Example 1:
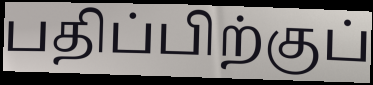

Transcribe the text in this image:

பதிப்பிற்குப்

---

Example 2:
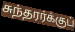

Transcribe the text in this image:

சுந்தரர்க்குப்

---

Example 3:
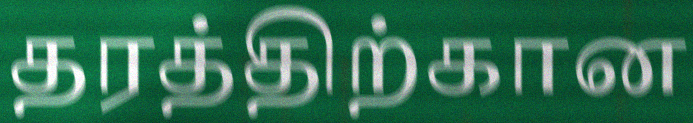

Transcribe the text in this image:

தரத்திற்கான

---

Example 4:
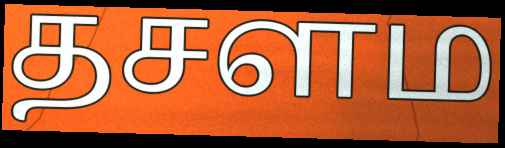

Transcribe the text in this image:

தசளம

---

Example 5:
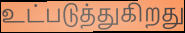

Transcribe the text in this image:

உட்படுத்துகிறது